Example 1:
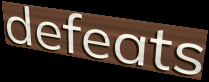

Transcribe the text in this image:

defeats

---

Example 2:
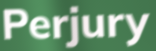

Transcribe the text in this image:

Perjury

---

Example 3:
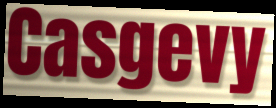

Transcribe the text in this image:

Casgevy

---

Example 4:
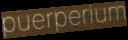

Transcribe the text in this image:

puerperium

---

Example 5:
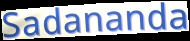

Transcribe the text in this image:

Sadananda